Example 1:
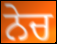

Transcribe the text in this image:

ਨੇਚ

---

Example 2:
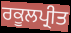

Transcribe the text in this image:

ਰਕੂਲਪ੍ਰੀਤ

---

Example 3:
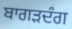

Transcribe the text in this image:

ਬਾਗੜਦੰਗ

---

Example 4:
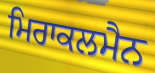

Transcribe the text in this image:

ਮਿਰਾਕਲਮੈਨ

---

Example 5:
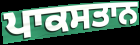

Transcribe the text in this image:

ਪਾਕਸਤਾਨ